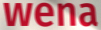
wena